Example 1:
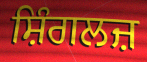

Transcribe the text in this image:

ਸ਼ਿੰਗਲਜ਼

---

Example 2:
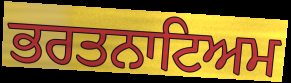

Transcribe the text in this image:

ਭਰਤਨਾਟਿਅਮ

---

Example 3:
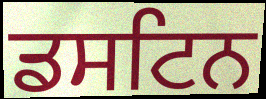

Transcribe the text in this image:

ਡਸਟਿਨ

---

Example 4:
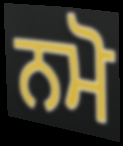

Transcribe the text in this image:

ਨਮੋ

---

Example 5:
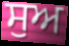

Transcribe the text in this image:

ਸੁਅ